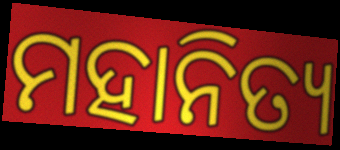
ମହାନିତ୍ୟ